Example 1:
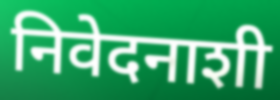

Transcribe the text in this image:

निवेदनाशी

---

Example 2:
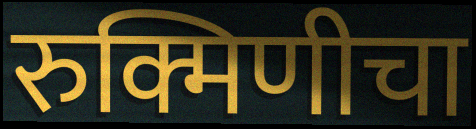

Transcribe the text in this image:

रुक्मिणीचा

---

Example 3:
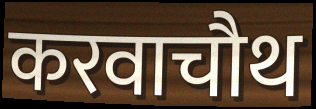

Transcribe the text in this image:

करवाचौथ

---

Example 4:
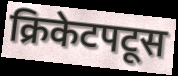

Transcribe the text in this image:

क्रिकेटपटूस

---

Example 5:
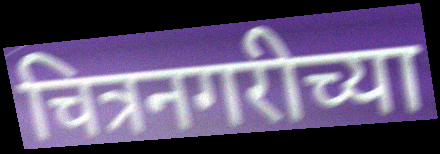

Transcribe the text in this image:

चित्रनगरीच्या